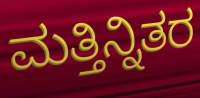
ಮತ್ತಿನ್ನಿತರ